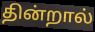
தின்றால்